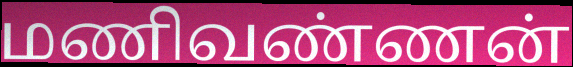
மணிவண்ணன்